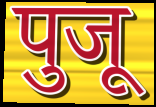
पुजू